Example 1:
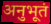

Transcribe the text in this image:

अनुभूतं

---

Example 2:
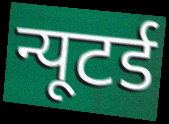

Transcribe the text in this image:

न्यूटर्ड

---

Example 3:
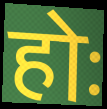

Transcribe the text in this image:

होः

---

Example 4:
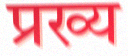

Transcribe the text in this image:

प्रख्य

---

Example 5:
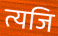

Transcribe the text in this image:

त्यजि